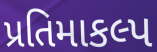
પ્રતિમાકલ્પ